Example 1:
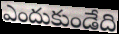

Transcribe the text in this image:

ఎందుకుండేది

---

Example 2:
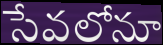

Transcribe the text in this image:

సేవలోనూ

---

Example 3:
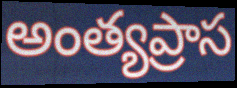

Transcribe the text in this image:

అంత్యప్రాస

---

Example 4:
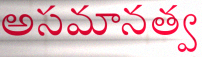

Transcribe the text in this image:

అసమానత్వ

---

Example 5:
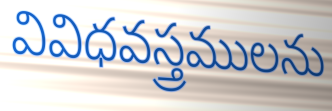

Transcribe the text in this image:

వివిధవస్త్రములను